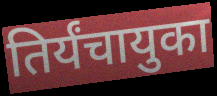
तिर्यंचायुका